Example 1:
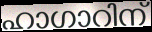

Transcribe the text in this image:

ഹാഗാറിന്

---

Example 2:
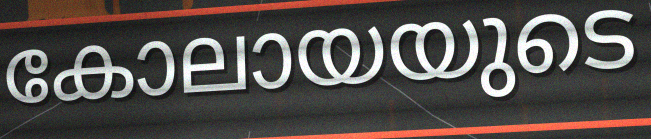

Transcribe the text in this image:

കോലായയുടെ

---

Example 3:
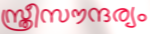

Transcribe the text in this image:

സ്ത്രീസൗന്ദര്യം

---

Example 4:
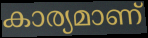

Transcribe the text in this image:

കാര്യമാണ്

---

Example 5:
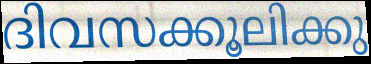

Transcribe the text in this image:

ദിവസക്കൂലിക്കു